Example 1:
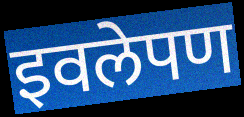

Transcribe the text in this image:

इवलेपण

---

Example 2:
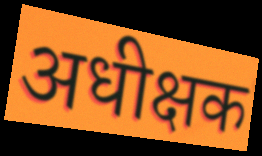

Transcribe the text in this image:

अधीक्षक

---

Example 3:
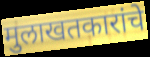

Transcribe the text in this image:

मुलाखतकारांचे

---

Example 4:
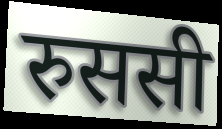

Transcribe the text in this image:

रुससी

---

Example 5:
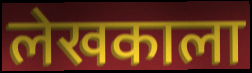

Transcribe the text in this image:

लेखकाला